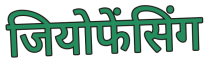
जियोफेंसिंग